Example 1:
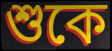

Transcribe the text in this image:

শুকে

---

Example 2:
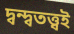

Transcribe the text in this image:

দ্বন্দ্বতত্ত্বই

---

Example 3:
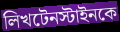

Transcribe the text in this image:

লিখটেনস্টাইনকে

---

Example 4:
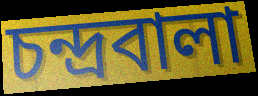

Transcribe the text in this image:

চন্দ্রবালা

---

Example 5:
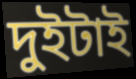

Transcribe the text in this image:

দুইটাই